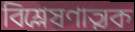
বিশ্লেষণাত্মক